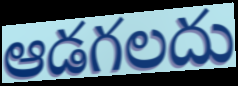
ఆడగలదు